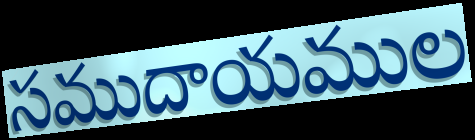
సముదాయముల